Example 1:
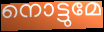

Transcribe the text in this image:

നൊട്ടുമേ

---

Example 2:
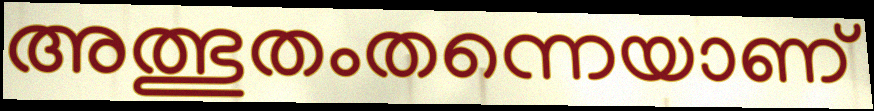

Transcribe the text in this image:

അത്ഭുതംതന്നെയാണ്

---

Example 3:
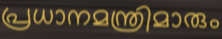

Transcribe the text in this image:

പ്രധാനമന്ത്രിമാരും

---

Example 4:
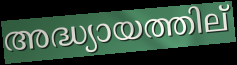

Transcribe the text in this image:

അദ്ധ്യായത്തില്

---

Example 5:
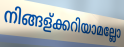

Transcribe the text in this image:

നിങ്ങള്ക്കറിയാമല്ലോ